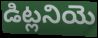
డిట్లనియె